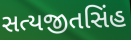
સત્યજીતસિંહ